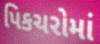
પિકચરોમાં